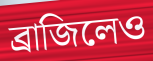
ব্রাজিলেও